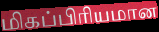
மிகப்பிரியமான